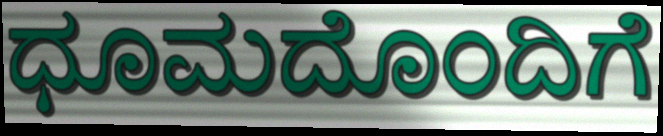
ಧೂಮದೊಂದಿಗೆ